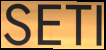
SETI